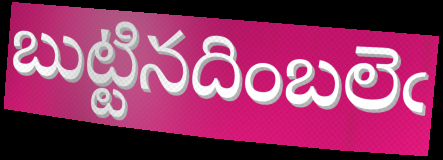
బుట్టినదింబలెఁ